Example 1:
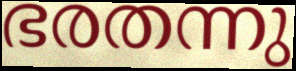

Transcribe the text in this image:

ഭരതന്നു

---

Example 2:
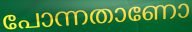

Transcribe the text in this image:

പോന്നതാണോ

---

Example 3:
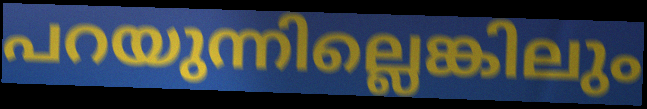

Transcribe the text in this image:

പറയുന്നില്ലെങ്കിലും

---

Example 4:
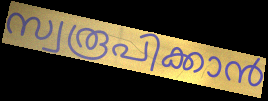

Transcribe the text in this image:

സ്വരൂപിക്കാൻ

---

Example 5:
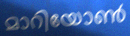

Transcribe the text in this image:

മാറിയോൺ